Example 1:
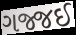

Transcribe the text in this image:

ગજ્જઈ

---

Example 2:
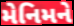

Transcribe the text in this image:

મેનિમને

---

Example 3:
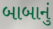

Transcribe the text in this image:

બાબાનું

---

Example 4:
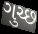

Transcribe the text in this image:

ગુચ્છ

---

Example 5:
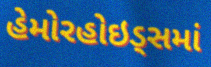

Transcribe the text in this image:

હેમોરહોઇડ્સમાં